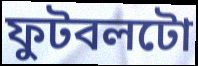
ফুটবলটো